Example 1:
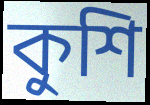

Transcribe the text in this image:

কুশি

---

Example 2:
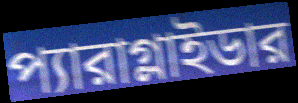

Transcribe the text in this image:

প্যারাগ্লাইডার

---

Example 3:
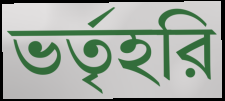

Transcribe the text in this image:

ভর্তৃহরি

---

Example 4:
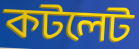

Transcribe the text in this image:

কটলেট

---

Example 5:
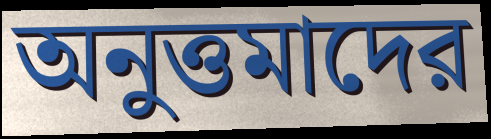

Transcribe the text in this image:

অনুত্তমাদের